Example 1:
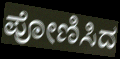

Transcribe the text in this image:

ಪೋಣಿಸಿದ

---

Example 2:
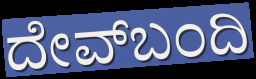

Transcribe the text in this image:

ದೇವ್‌ಬಂದಿ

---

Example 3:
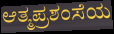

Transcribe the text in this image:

ಆತ್ಮಪ್ರಶಂಸೆಯ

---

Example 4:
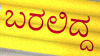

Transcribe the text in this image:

ಬರಲಿದ್ದ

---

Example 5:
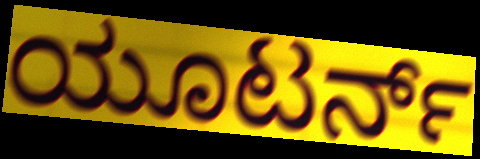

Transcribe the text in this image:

ಯೂಟರ್ನ್